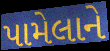
પામેલાને